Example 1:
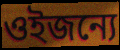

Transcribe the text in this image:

ওইজন্যে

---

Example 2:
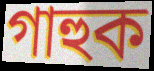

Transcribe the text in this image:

গাহুক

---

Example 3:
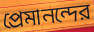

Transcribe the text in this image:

প্রেমানন্দের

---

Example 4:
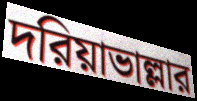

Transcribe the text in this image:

দরিয়াভাল্লার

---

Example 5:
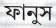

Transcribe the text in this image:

ফানুস